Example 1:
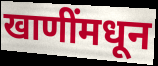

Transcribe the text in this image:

खाणींमधून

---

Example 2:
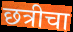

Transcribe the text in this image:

छत्रीचा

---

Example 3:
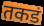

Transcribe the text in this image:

तकडं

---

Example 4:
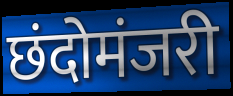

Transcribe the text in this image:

छंदोमंजरी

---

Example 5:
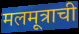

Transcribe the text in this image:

मलमूत्राची